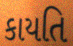
કાયતિ